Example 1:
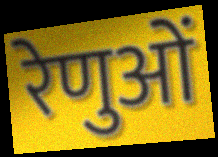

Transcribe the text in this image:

रेणुओं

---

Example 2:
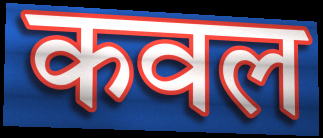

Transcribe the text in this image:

कवल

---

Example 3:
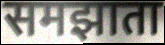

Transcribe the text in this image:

समझाता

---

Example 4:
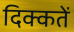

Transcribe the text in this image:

दिक्कतें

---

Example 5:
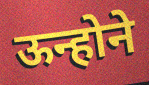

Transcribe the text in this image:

ऊन्होने